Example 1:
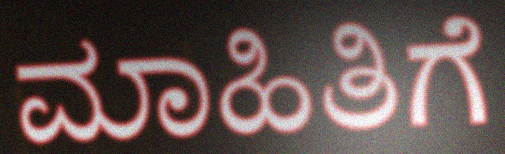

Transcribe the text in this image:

ಮಾಹಿತಿಗೆ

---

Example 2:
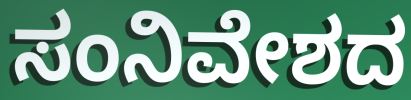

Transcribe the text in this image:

ಸಂನಿವೇಶದ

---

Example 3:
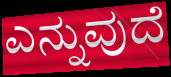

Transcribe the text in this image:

ಎನ್ನುವುದೆ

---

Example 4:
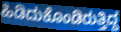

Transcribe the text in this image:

ಹಿಡಿದುಕೊಂಡಿರುತ್ತಿದ್ದ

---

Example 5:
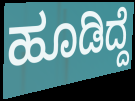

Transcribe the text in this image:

ಹೂಡಿದ್ದೆ